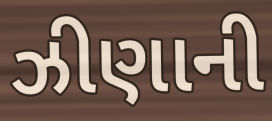
ઝીણાની